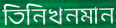
তিনিখনমান